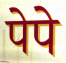
पेपे